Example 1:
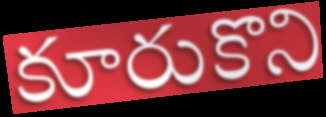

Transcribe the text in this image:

కూరుకొని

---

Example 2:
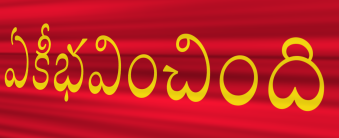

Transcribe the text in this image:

ఏకీభవించింది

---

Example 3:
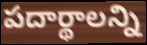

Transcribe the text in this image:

పదార్థాలన్ని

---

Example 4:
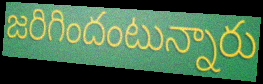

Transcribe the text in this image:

జరిగిందంటున్నారు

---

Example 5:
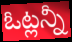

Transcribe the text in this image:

ఓట్లన్నీ